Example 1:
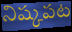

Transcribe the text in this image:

నిష్కపట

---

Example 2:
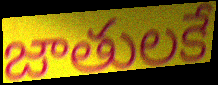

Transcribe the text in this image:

జాతులకే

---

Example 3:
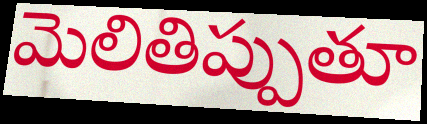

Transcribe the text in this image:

మెలితిప్పుతూ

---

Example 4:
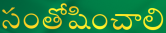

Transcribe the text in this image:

సంతోషించాలి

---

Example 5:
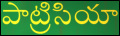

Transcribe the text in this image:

పాట్రిసియా